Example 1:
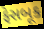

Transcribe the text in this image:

ફેસબૂક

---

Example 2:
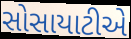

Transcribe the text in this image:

સોસાયાટીએ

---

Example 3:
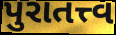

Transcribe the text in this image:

પુરાતત્ત્વ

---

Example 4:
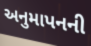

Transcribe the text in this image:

અનુમાપનની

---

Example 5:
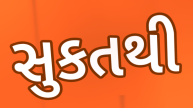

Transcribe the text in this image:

સુકતથી